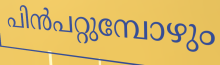
പിൻപറ്റുമ്പോഴും